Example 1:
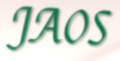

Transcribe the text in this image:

JAOS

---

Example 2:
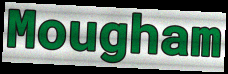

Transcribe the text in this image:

Mougham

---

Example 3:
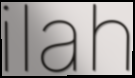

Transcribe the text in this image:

ilah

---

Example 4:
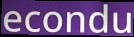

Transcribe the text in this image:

econdu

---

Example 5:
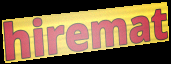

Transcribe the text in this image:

hiremat